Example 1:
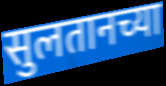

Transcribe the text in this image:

सुलतानच्या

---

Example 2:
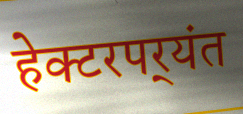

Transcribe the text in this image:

हेक्टरपर्यंत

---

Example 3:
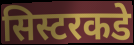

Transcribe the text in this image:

सिस्टरकडे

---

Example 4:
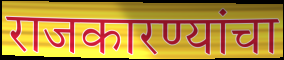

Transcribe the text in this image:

राजकारण्यांचा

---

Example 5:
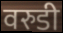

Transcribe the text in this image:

वरुडी